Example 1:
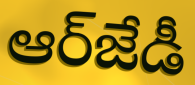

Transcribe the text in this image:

ఆర్‌జేడీ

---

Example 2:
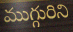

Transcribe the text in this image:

ముగ్గురిని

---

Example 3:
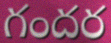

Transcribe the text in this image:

గందర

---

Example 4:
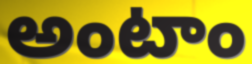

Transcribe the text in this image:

అంటాం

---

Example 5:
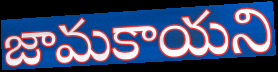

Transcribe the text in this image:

జామకాయని